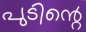
പുടിന്റെ